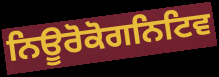
ਨਿਊਰੋਕੋਗਨਿਟਿਵ